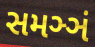
સમઞ્ઞં